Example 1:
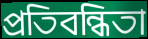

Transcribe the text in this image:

প্রতিবন্ধিতা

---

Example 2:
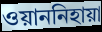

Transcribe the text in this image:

ওয়াননিহায়া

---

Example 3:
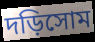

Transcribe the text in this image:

দড়িসোম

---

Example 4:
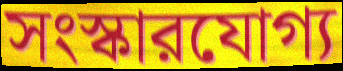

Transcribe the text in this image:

সংস্কারযোগ্য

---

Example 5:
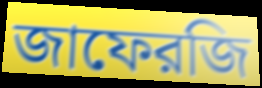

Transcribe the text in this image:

জাফেরজি